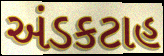
અંડકટાહ